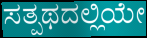
ಸತ್ಪಥದಲ್ಲಿಯೇ